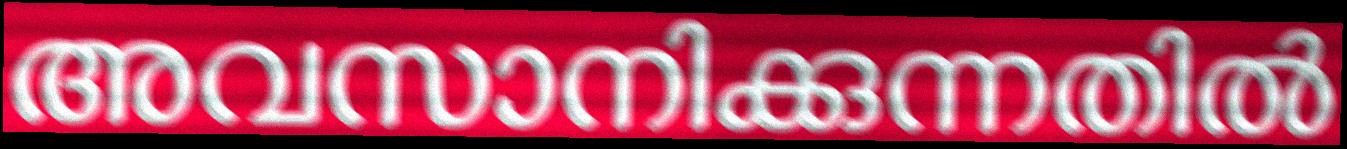
അവസാനിക്കുന്നതിൽ